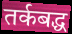
तर्कबद्ध